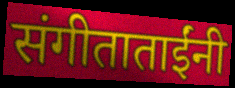
संगीताताईंनी